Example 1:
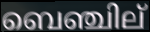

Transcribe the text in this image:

ബെഞ്ചില്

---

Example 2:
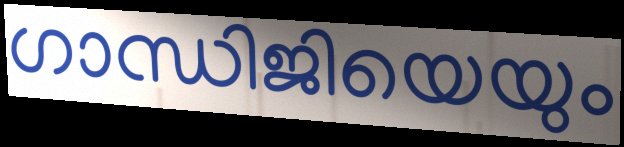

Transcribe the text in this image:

ഗാന്ധിജിയെയും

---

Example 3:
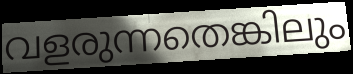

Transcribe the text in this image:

വളരുന്നതെങ്കിലും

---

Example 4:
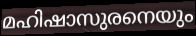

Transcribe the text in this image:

മഹിഷാസുരനെയും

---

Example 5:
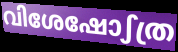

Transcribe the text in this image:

വിശേഷോഽത്ര